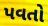
પવતો